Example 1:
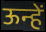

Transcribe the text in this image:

ऊन्हें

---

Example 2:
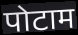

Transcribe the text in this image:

पोटाम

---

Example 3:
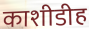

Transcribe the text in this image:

काशीडीह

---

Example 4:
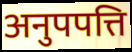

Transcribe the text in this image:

अनुपपत्ति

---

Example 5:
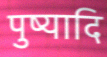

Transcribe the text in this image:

पुष्यादि